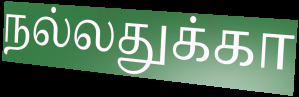
நல்லதுக்கா